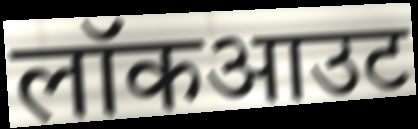
लॉकआउट